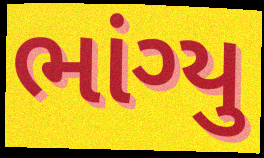
ભાંગ્યુ